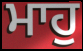
ਮਾਹੁ